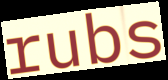
rubs